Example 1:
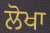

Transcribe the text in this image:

ਲੋਖਾ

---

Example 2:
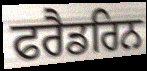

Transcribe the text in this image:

ਫਰੈਡਰਿਨ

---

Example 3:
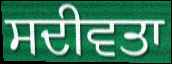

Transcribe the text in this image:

ਸਦੀਵਤਾ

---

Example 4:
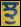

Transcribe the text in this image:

ਝੁ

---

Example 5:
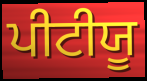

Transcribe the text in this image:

ਪੀਟੀਯੂ